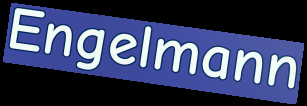
Engelmann